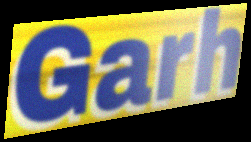
Garh